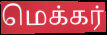
மெக்கர்